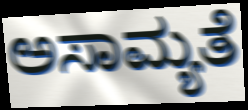
ಅಸಾಮ್ಯತೆ